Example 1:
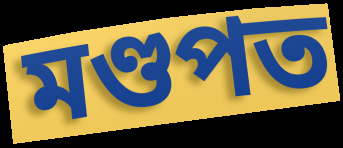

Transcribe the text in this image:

মণ্ডপত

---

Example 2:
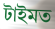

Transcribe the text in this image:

টাইমত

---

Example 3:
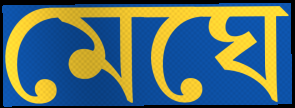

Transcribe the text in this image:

মেঘে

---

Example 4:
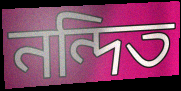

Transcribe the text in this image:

নন্দিত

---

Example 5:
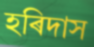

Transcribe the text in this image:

হৰিদাস